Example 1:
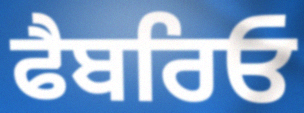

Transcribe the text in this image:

ਫੈਬਰਿਓ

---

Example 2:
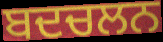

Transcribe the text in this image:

ਬਦਚਲਨ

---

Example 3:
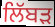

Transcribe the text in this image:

ਲਿੱਬੜ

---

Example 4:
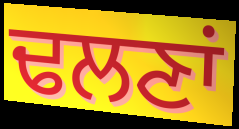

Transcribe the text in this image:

ਢਲਣਾਂ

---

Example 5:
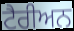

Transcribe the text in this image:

ਟੈਰੀਅਨ